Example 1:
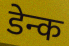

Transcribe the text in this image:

डेन्क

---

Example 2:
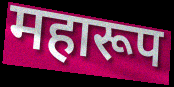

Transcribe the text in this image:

महारूप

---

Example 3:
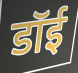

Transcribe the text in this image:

डॉई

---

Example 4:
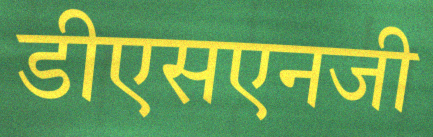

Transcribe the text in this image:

डीएसएनजी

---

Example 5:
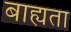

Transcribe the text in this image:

बाह्यता